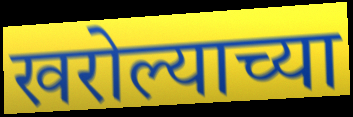
खरोल्याच्या